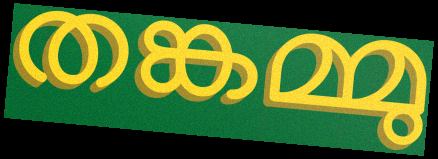
തങ്കമ്മു